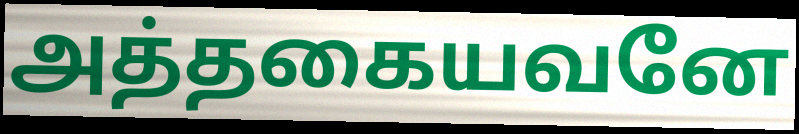
அத்தகையவனே